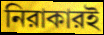
নিরাকারই